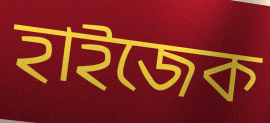
হাইজেক